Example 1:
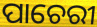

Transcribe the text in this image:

ପାଚେରୀ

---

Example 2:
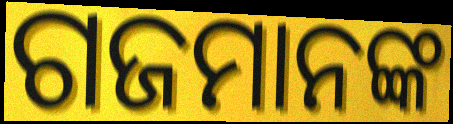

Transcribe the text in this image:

ଗଜମାନଙ୍କ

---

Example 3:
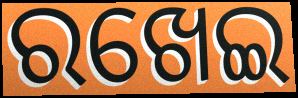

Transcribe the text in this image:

ରଖେଇ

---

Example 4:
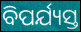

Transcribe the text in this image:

ବିପର୍ଯ୍ୟସ୍ତ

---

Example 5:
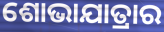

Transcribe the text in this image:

ଶୋଭାଯାତ୍ରାର